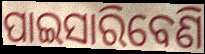
ପାଇସାରିବେଣି